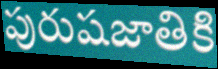
పురుషజాతికి